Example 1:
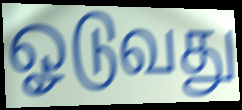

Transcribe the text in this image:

ஓடுவது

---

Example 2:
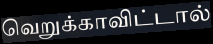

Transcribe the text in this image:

வெறுக்காவிட்டால்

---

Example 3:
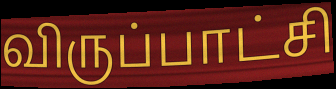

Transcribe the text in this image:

விருப்பாட்சி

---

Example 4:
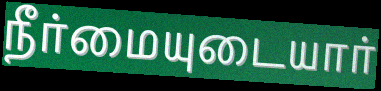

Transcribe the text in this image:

நீர்மையுடையார்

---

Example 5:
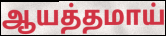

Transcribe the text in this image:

ஆயத்தமாய்